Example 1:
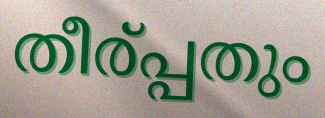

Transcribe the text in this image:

തീര്പ്പതും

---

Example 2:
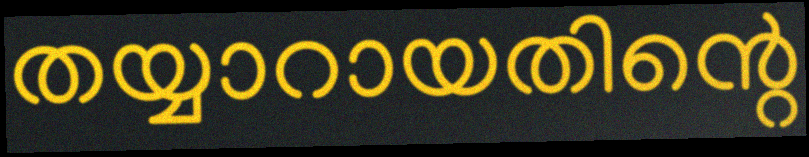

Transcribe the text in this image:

തയ്യാറായതിന്റെ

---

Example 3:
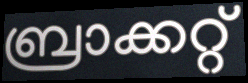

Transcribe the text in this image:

ബ്രാക്കറ്റ്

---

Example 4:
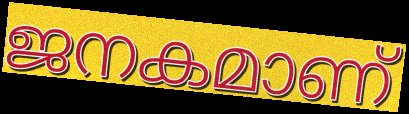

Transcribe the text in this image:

ജനകമാണ്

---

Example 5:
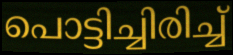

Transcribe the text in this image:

പൊട്ടിച്ചിരിച്ച്